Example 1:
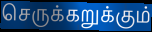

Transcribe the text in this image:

செருக்கறுக்கும்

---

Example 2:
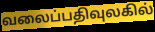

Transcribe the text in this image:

வலைப்பதிவுலகில்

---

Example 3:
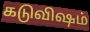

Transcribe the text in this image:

கடுவிஷம்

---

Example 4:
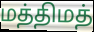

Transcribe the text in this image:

மத்திமத்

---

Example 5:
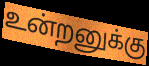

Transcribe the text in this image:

உன்றனுக்கு